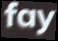
fay